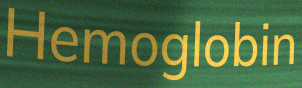
Hemoglobin